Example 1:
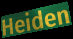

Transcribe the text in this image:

Heiden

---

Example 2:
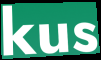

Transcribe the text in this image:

kus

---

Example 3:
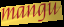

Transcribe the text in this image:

mangu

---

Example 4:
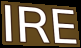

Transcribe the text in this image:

IRE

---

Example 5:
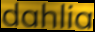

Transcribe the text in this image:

dahlia